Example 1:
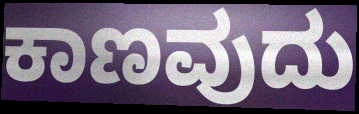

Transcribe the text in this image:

ಕಾಣವುದು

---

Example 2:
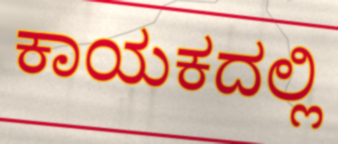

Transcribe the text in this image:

ಕಾಯಕದಲ್ಲಿ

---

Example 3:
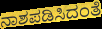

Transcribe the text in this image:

ನಾಶಪಡಿಸಿದಂತೆ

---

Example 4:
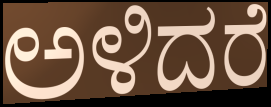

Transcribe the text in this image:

ಅಳಿದರೆ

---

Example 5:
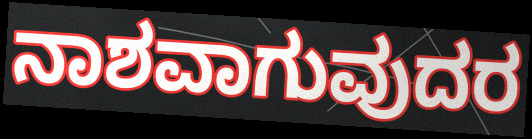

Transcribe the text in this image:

ನಾಶವಾಗುವುದರ